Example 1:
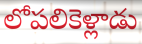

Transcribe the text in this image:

లోపలికెళ్లాడు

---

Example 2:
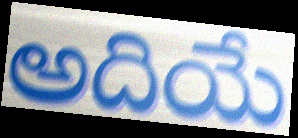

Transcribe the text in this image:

అదియే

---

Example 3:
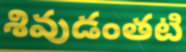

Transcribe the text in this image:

శివుడంతటి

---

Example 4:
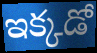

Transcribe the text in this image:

ఇక్కడో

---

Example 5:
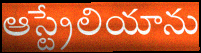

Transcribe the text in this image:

ఆస్ట్రేలియాను